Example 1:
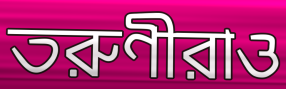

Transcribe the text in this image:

তরুণীরাও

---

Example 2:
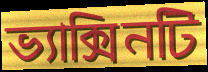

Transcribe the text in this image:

ভ্যাক্সিনটি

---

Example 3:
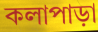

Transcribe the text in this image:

কলাপাড়া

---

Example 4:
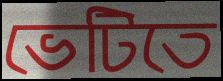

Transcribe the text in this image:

ভেটিতে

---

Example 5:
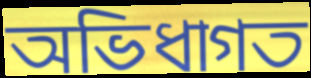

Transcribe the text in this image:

অভিধাগত